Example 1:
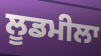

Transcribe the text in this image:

ਲੂਡਮੀਲਾ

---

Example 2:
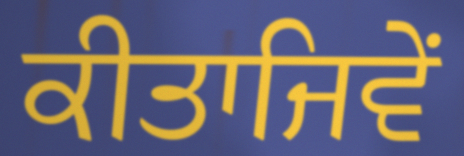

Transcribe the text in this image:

ਕੀਤਾਜਿਵੇਂ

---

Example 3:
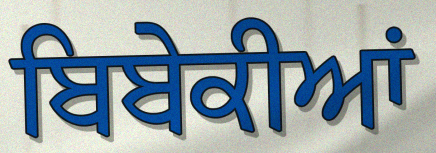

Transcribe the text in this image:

ਬਿਬੇਕੀਆਂ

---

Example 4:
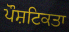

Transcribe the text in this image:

ਪੌਸ਼ਟਿਕਤਾ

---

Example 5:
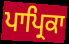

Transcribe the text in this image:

ਪਾਪ੍ਰਿਕਾ